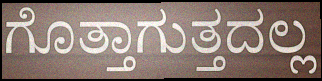
ಗೊತ್ತಾಗುತ್ತದಲ್ಲ